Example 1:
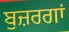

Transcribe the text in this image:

ਬੁਜ਼ਰਗਾਂ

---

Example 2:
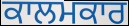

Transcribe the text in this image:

ਕਾਲਮਕਾਰ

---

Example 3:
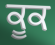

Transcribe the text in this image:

ਕੂਕ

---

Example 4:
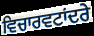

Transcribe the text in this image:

ਵਿਚਾਰਵਟਾਂਦਰੇ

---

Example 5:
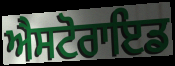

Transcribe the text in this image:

ਐਸਟੋਰਾਇਡ